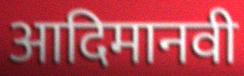
आदिमानवी